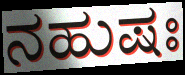
ನಹುಷಃ